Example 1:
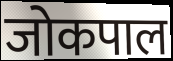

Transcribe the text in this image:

जोकपाल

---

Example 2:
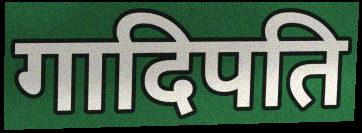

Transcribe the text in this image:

गादिपति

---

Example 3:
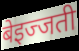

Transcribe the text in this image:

बेइज्जती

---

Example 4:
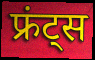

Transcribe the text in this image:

फ्रंट्स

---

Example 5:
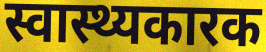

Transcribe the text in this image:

स्वास्थ्यकारक